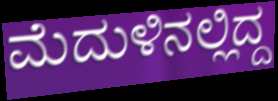
ಮೆದುಳಿನಲ್ಲಿದ್ದ